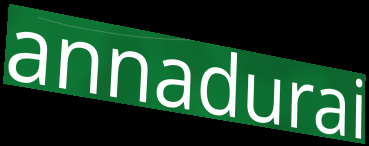
annadurai